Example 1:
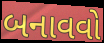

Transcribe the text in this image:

બનાવવો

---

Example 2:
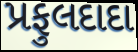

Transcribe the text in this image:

પ્રફુલદાદા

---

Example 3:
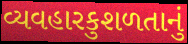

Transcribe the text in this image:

વ્યવહારકુશળતાનું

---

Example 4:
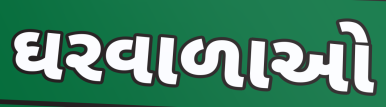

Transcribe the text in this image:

ઘરવાળાઓ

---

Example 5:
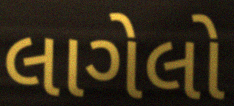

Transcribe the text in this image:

લાગેલો